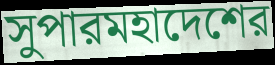
সুপারমহাদেশের